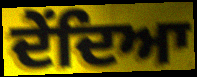
ਦੇਂਦਿਆ